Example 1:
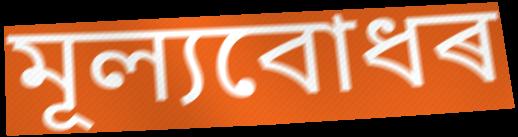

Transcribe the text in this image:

মূল্যবোধৰ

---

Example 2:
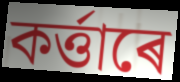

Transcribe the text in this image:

কৰ্ত্তাৰে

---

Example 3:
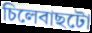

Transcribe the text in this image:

চিলেবাছটো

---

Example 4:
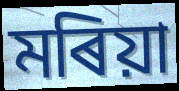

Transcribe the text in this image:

মৰিয়া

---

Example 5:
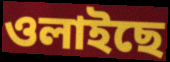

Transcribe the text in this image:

ওলাইছে